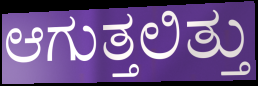
ಆಗುತ್ತಲಿತ್ತು